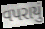
વપરાયું